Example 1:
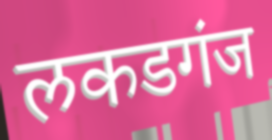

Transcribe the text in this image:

लकडगंज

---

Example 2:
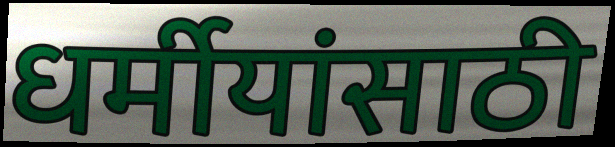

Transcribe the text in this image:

धर्मीयांसाठी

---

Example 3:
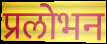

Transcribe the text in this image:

प्रलोभन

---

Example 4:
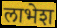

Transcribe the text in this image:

लाभेश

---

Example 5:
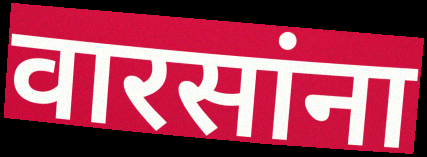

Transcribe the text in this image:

वारसांना